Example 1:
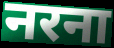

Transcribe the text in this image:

नरना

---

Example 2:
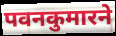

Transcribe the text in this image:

पवनकुमारने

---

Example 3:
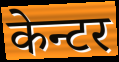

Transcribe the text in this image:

केन्टर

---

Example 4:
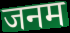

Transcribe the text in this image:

जनम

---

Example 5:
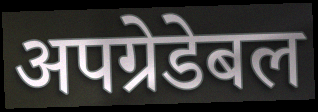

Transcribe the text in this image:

अपग्रेडेबल